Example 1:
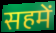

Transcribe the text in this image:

सहमें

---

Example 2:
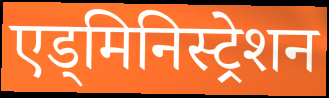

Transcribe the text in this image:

एड्मिनिस्ट्रेशन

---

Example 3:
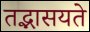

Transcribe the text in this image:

तद्भासयते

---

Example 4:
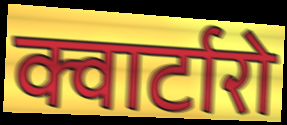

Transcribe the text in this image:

क्वार्टारो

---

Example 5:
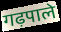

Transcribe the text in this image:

गढ़पाले